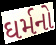
ઘર્મનો